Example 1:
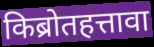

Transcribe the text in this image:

किब्रोतहत्तावा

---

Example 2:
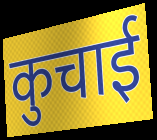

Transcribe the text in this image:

कुचाई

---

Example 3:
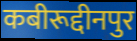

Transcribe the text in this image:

कबीरूद्दीनपुर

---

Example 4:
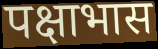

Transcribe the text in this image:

पक्षाभास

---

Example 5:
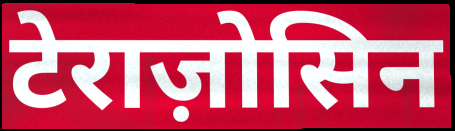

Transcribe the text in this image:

टेराज़ोसिन